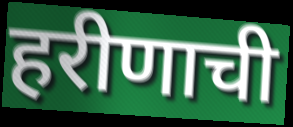
हरीणाची